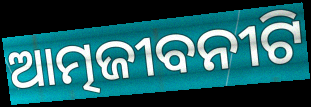
ଆତ୍ମଜୀବନୀଟି